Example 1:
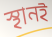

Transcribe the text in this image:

স্থানই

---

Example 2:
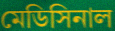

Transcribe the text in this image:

মেডিসিনাল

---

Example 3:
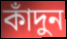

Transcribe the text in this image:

কাঁদুন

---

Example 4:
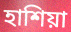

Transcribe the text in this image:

হাশিয়া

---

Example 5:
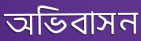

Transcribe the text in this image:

অভিবাসন